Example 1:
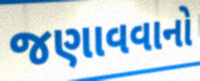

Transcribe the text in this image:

જણાવવાનો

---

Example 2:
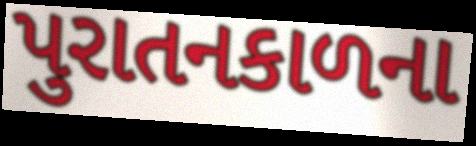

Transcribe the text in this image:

પુરાતનકાળના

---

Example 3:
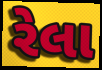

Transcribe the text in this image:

રેલા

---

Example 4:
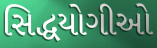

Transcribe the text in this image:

સિદ્ધયોગીઓ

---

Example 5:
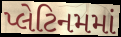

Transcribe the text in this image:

પ્લેટિનમમાં